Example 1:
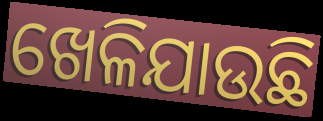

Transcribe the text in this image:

ଖେଳିଯାଉଛି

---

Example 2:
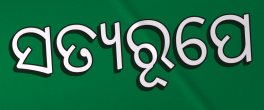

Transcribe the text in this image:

ସତ୍ୟରୂପେ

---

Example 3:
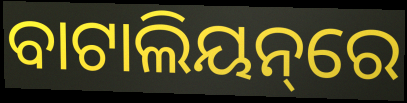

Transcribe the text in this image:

ବାଟାଲିୟନ୍‌ରେ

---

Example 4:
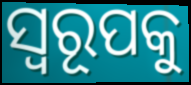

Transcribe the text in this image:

ସ୍ବରୂପକୁ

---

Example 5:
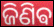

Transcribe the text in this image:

ଜିଣିଵ